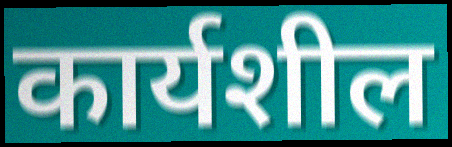
कार्यशील